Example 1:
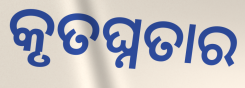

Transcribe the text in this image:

କୃତଘ୍ନତାର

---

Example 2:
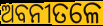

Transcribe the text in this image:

ଅବନୀତଳେ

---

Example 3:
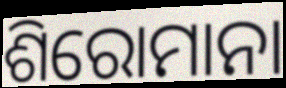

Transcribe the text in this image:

ଶିରୋମାନା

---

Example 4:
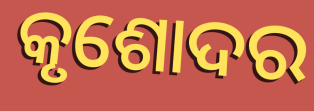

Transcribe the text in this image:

କୃଶୋଦର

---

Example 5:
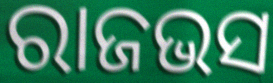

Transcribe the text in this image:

ରାଜଭସ